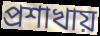
প্রশাখায়